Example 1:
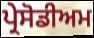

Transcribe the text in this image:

ਪ੍ਰੇਸੋਡੀਅਮ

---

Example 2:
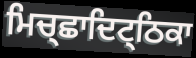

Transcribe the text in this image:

ਮਿਚ੍ਛਾਦਿਟ੍ਠਿਕਾ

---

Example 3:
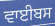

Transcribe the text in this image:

ਵਾਈਬਸ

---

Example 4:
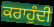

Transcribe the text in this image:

ਕਰਾਹੁੰਦੀ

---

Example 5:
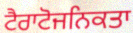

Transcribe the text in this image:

ਟੈਰਾਟੋਜਨਿਕਤਾ